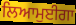
ਲਿਆਮੁਈਗਾ